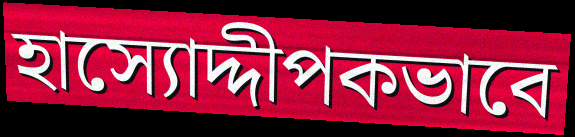
হাস্যোদ্দীপকভাবে